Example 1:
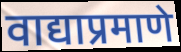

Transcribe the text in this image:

वाद्याप्रमाणे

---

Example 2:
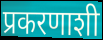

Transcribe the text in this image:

प्रकरणाशी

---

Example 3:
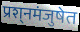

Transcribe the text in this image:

प्रश्नमंजुषेत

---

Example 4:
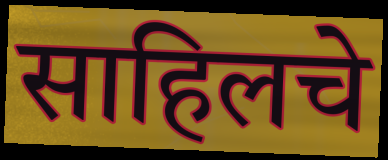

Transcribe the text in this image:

साहिलचे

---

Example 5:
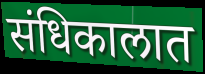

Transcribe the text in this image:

संधिकालात